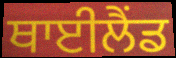
ਥਾਈਲੈਂਡ